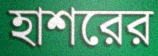
হাশরের